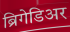
ब्रिगेडिअर